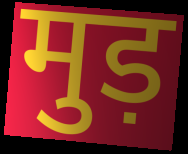
मुड़